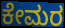
ಕೇಮರ